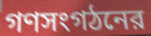
গণসংগঠনের